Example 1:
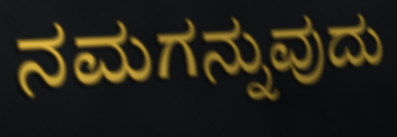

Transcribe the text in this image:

ನಮಗನ್ನುವುದು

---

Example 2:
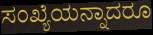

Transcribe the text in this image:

ಸಂಖ್ಯೆಯನ್ನಾದರೂ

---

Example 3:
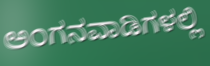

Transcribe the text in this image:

ಅಂಗನವಾಡಿಗಳಲ್ಲಿ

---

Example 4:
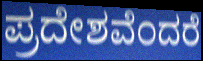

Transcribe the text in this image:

ಪ್ರದೇಶವೆಂದರೆ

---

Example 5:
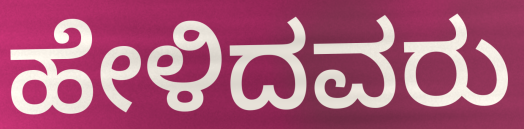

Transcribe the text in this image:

ಹೇಳಿದವರು